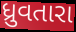
ધ્રુવતારા